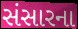
સંસારના